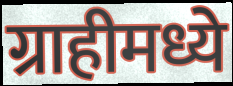
ग्राहीमध्ये